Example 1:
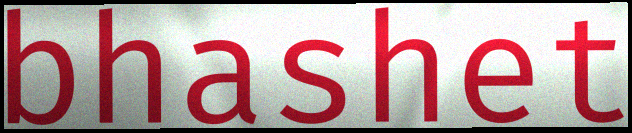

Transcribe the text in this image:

bhashet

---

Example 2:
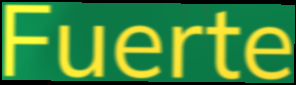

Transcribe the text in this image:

Fuerte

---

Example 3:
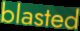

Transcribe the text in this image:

blasted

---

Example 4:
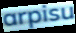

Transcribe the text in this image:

arpisu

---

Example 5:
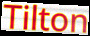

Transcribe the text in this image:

Tilton